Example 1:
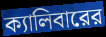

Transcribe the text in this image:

ক্যালিবারের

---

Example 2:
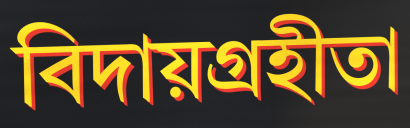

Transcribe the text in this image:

বিদায়গ্রহীতা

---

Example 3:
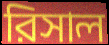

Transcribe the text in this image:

রিসাল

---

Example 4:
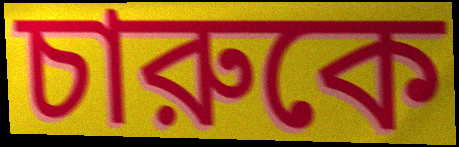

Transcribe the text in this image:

চারুকে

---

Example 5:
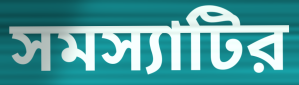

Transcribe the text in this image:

সমস্যাটির